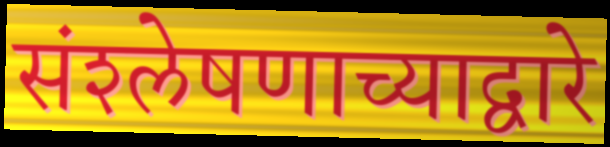
संश्लेषणाच्याद्वारे